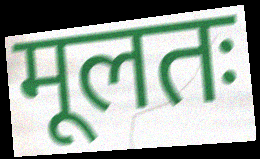
मूलतः